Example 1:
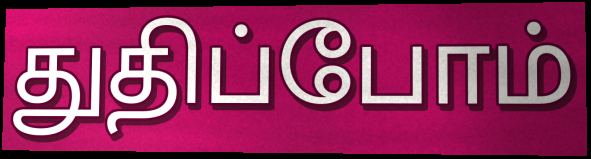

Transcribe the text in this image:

துதிப்போம்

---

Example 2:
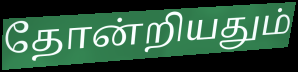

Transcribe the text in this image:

தோன்றியதும்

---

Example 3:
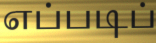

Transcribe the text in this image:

எப்படிப்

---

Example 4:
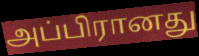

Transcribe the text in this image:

அப்பிரானது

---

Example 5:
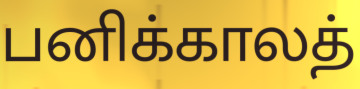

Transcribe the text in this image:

பனிக்காலத்